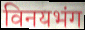
विनयभंग